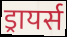
ड्रायर्स